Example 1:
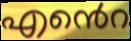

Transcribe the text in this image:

എൻെറ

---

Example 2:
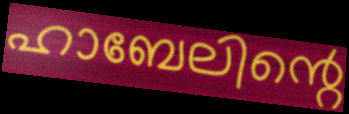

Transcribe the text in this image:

ഹാബേലിന്റെ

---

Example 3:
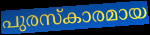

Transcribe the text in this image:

പുരസ്കാരമായ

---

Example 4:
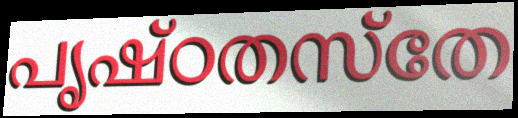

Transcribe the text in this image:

പൃഷ്ഠതസ്തേ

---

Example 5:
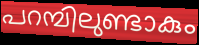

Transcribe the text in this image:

പറമ്പിലുണ്ടാകും